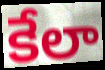
కేలా